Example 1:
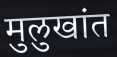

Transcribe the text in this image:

मुलुखांत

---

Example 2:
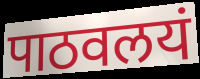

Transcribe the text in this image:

पाठवलयं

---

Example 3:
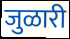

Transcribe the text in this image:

जुळारी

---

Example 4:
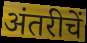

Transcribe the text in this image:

अंतरीचें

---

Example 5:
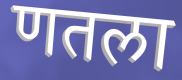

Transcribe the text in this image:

णतला